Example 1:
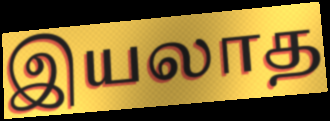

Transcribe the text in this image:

இயலாத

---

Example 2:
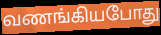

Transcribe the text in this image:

வணங்கியபோது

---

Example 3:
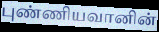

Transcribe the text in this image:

புண்ணியவானின்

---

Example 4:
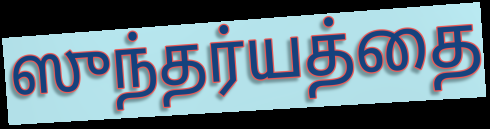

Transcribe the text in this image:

ஸுந்தர்யத்தை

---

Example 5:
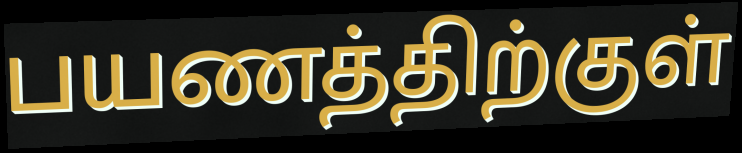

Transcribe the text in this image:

பயணத்திற்குள்